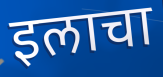
इलाचा